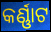
କର୍ଣ୍ଣାଟ